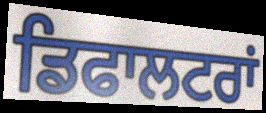
ਡਿਫਾਲਟਰਾਂ